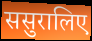
ससुरालिए